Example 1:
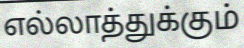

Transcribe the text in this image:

எல்லாத்துக்கும்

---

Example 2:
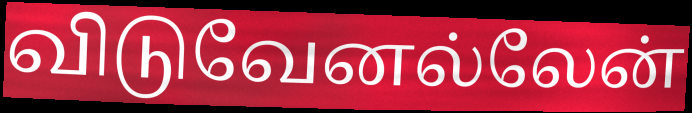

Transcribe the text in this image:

விடுவேனல்லேன்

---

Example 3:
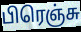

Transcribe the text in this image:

பிரெஞ்சு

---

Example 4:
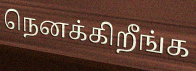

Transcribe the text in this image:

நெனக்கிறீங்க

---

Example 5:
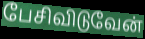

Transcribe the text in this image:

பேசிவிடுவேன்